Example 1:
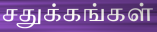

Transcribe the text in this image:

சதுக்கங்கள்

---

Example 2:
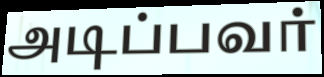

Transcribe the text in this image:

அடிப்பவர்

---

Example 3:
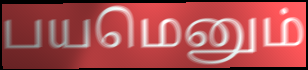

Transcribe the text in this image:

பயமெனும்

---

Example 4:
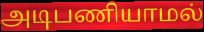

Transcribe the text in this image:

அடிபணியாமல்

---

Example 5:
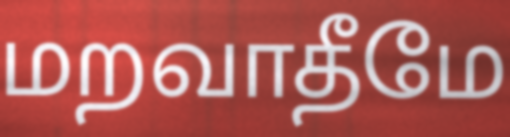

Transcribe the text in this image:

மறவாதீமே